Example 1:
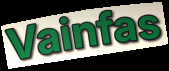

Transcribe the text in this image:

Vainfas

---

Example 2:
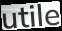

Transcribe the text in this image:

utile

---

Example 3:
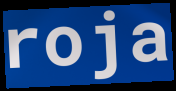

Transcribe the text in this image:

roja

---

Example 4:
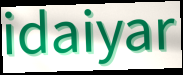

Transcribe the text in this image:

idaiyar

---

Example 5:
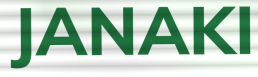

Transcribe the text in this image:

JANAKI